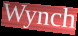
Wynch